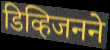
डिव्हिजनने